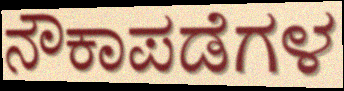
ನೌಕಾಪಡೆಗಳ